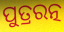
ପୁତ୍ରରତ୍ନ